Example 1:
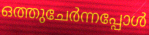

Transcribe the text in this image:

ഒത്തുചേർന്നപ്പോൾ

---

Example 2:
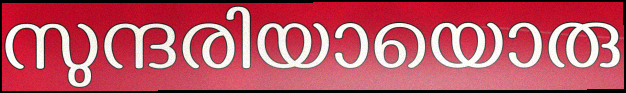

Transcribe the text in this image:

സുന്ദരിയായൊരു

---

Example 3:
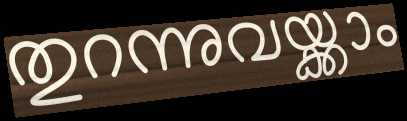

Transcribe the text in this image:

തുറന്നുവയ്ക്കാം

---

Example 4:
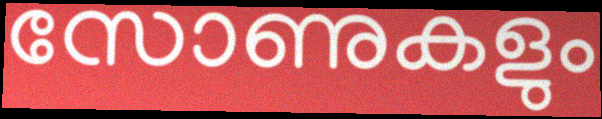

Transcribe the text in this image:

സോണുകളും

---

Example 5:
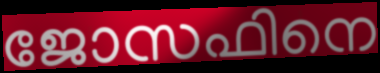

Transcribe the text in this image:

ജോസഫിനെ